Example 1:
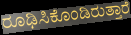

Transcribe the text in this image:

ರೂಢಿಸಿಕೊಂಡಿರುತ್ತಾರೆ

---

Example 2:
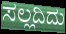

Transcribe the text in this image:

ಸಲ್ಲದಿದು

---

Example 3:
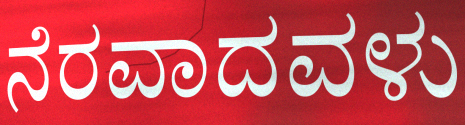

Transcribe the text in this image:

ನೆರವಾದವಳು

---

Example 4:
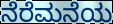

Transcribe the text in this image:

ನೆರೆಮನೆಯ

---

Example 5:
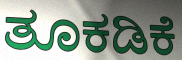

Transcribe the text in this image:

ತೂಕಡಿಕೆ